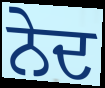
ਨੇਦ